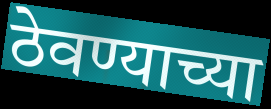
ठेवण्याच्या